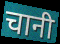
चानी